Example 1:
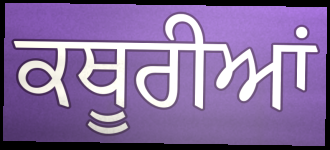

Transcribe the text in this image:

ਕਥੂਰੀਆਂ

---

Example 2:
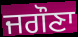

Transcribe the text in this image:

ਜਗੌਣਾ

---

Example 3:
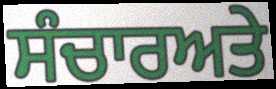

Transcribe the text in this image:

ਸੰਚਾਰਅਤੇ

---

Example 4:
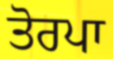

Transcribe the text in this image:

ਤੋਰਪਾ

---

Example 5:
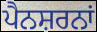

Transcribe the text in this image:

ਪੈਨਸ਼ਰਨਾਂ